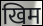
खिम